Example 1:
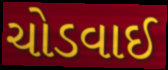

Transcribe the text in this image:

ચોડવાઈ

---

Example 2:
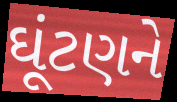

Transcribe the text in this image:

ઘૂંટણને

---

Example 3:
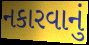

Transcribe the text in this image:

નકારવાનું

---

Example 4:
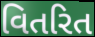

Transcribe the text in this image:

વિતરિત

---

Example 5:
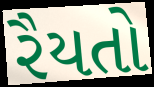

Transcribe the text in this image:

રૈયતો